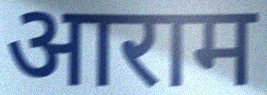
आराम